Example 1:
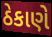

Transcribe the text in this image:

ઠેકાણે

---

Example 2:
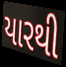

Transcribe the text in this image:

યારથી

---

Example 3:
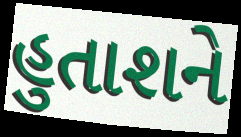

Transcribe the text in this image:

હુતાશને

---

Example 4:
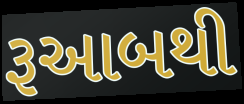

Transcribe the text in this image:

રૂઆબથી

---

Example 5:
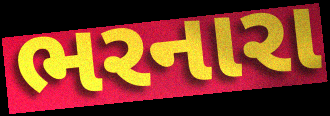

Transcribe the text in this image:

ભરનારા